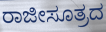
ರಾಜೀಸೂತ್ರದ